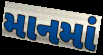
માનમાં